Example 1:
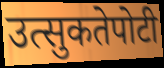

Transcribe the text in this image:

उत्सुकतेपोटी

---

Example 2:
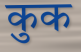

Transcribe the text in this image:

कुक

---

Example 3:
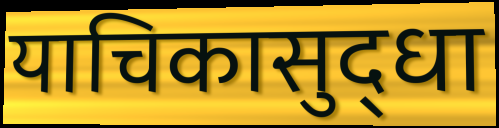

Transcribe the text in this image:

याचिकासुद्धा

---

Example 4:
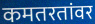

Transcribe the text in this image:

कमतरतांवर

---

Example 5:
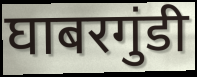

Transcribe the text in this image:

घाबरगुंडी